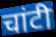
चांटी